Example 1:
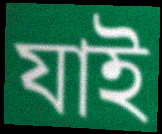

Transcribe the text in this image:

যাই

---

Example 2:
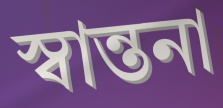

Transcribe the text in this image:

স্বান্তনা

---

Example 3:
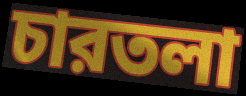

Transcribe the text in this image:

চারতলা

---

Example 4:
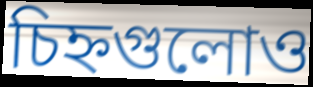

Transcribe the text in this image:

চিহ্নগুলোও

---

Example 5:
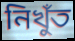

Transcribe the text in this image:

নিখুঁত